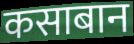
कसाबान